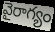
వైరాగ్యం